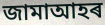
জামাআহৰ